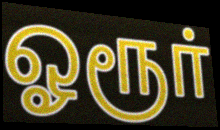
ஓரூர்